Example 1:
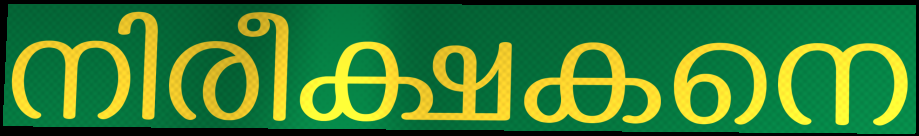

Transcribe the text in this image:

നിരീക്ഷകനെ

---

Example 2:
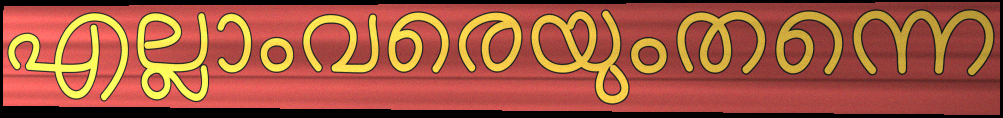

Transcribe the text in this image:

എല്ലാംവരെയുംതന്നെ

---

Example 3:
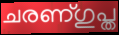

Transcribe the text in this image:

ചരണ്ഗുപ്ത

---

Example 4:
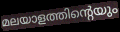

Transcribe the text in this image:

മലയാളത്തിന്റെയും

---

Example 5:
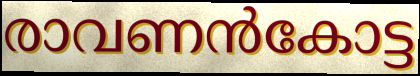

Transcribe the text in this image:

രാവണൻകോട്ട